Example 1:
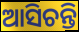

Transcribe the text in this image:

ଆସିଚନ୍ତି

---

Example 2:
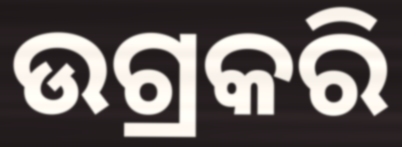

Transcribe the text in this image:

ଉଗ୍ରକରି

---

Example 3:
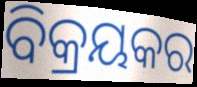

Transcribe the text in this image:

ବିକ୍ରୟକର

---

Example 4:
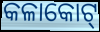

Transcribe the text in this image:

କଳାକୋଟ୍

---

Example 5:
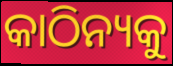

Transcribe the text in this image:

କାଠିନ୍ୟକୁ